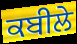
ਕਬੀਲੇ